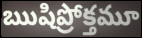
ఋషిప్రోక్తమూ